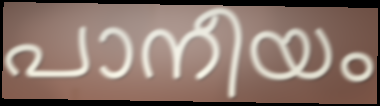
പാനീയം